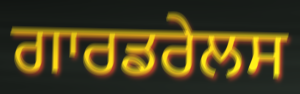
ਗਾਰਡਰੇਲਸ